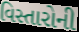
વિસ્તારોની